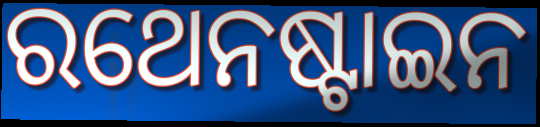
ରଥେନଷ୍ଟାଇନ